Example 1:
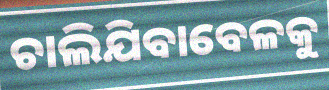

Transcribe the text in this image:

ଚାଲିଯିବାବେଳକୁ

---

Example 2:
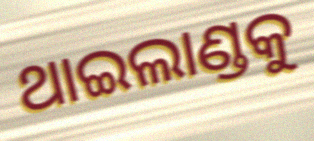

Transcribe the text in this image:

ଥାଇଲାଣ୍ଡକୁ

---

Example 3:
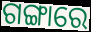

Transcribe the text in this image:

ଗଙ୍ଗାରେ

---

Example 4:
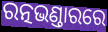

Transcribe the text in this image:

ରତ୍ନଭଣ୍ଡାରରେ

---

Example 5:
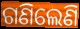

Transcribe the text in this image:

ଗଣିଲେଣି